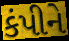
કંપીને